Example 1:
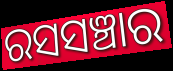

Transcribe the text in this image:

ରସସଞ୍ଚାର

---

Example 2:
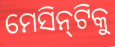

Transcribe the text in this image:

ମେସିନ୍‍ଟିକୁ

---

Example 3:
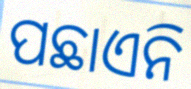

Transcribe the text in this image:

ପଛାଏନି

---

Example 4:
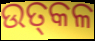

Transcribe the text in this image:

ଉତ୍‌କଳ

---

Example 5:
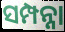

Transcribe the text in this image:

ସମ୍ପନ୍ନା